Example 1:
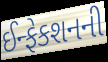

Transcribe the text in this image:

ઈન્ફેકશનની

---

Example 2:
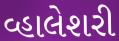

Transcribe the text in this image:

વ્હાલેશરી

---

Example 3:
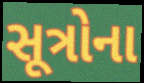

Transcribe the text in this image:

સૂત્રોના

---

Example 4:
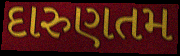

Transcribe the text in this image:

દારુણતમ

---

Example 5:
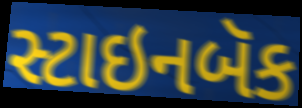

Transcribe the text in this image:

સ્ટાઇનબૅક